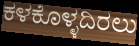
ಕಳಕೊಳ್ಳದಿರಲು